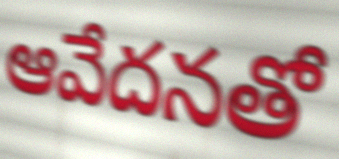
ఆవేదనతో